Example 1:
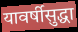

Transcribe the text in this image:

यावर्षीसुद्धा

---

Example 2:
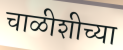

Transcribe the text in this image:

चाळीशीच्या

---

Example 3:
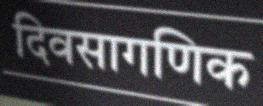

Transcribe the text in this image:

दिवसागणिक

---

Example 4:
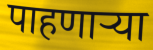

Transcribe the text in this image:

पाहणार्‍या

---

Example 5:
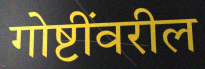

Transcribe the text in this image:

गोष्टींवरील